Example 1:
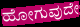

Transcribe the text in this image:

ಹೋಗುವುದೇ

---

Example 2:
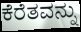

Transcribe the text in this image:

ಕೆರೆತವನ್ನು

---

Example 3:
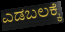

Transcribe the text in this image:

ಎಡಬಲಕ್ಕೆ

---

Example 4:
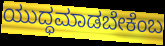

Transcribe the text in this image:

ಯುದ್ಧಮಾಡಬೇಕೆಂಬ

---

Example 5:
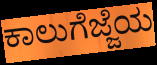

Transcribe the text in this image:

ಕಾಲುಗೆಜ್ಜೆಯ